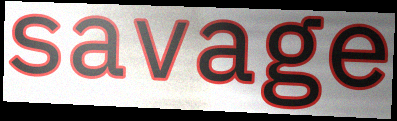
savage